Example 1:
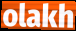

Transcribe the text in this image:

olakh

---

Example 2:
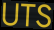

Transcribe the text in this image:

UTS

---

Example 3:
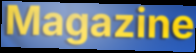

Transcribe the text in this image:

Magazine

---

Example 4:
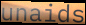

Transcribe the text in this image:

unaids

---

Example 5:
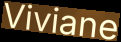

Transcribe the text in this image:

Viviane